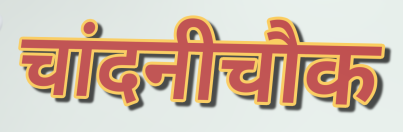
चांदनीचौक